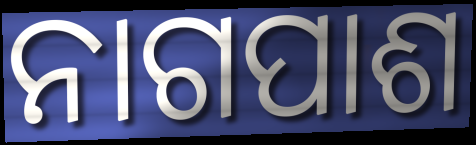
ନାଗପାଶ